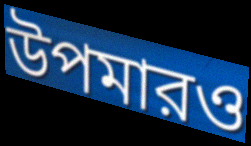
উপমারও